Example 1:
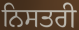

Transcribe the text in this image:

ਨਿਸਤਰੀ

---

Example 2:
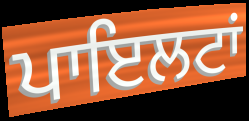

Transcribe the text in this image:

ਪਾਇਲਟਾਂ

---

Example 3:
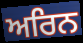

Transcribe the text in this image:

ਅਰਿਨ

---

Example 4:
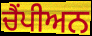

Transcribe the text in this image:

ਚੈਂਪੀਅਨ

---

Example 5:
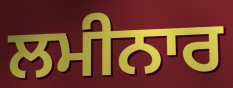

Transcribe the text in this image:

ਲਮੀਨਾਰ